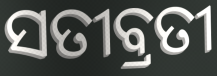
ସତୀବ୍ରତୀ